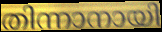
തിന്നാനായി